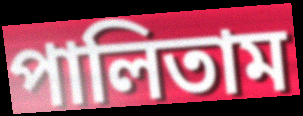
পালিতাম